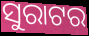
ସୁରାଟର